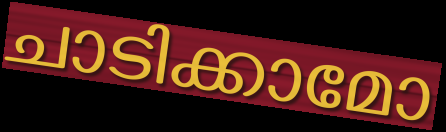
ചാടിക്കാമോ